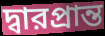
দ্বারপ্রান্ত